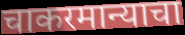
चाकरमान्याचा